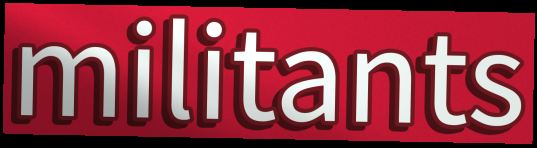
militants